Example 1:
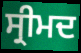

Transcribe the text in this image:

ਸ੍ਰੀਮਦ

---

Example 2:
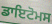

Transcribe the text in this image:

ਡਾਇਟੋਮਸ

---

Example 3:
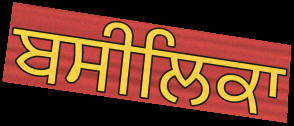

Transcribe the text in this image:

ਬਸੀਲਿਕਾ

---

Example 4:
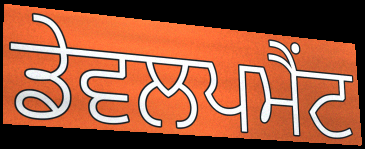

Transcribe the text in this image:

ਡੇਵਲਪਮੈਂਟ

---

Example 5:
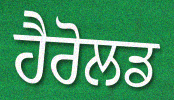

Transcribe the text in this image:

ਹੈਰੋਲਡ